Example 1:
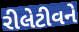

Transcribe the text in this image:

રીલેટીવને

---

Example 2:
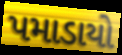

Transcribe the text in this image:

પમાડાયો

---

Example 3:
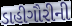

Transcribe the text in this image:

ડાહીગૌરીની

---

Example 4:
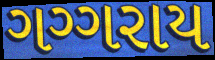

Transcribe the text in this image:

ગગ્ગરાય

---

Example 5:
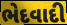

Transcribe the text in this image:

ભેદવાદી